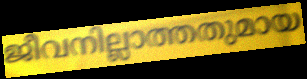
ജീവനില്ലാത്തതുമായ